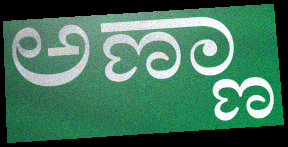
ಅಣ್ಣಾ